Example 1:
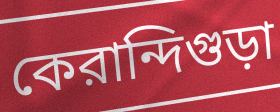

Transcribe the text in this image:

কেরান্দিগুড়া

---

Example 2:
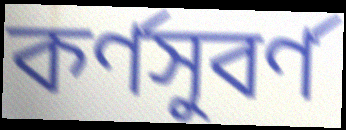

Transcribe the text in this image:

কর্ণসুবর্ণ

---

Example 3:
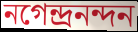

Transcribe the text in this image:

নগেন্দ্রনন্দন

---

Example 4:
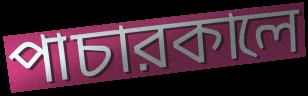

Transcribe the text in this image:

পাচারকালে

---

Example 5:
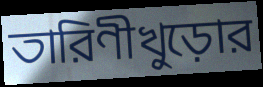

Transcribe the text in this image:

তারিণীখুড়োর